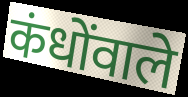
कंधोंवाले